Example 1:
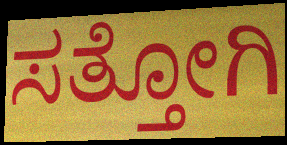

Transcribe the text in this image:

ಸತ್ತೋಗಿ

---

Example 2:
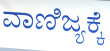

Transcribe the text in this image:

ವಾಣಿಜ್ಯಕ್ಕೆ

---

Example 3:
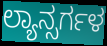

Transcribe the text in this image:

ಲ್ಯಾನ್ಸರ್ಗಳ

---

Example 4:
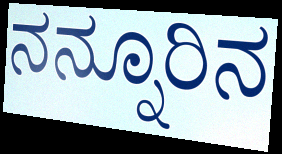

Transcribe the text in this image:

ನನ್ನೂರಿನ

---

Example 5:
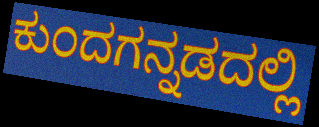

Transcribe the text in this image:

ಕುಂದಗನ್ನಡದಲ್ಲಿ